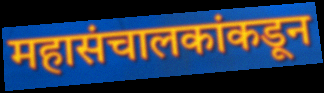
महासंचालकांकडून